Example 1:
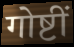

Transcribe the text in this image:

गोष्टीं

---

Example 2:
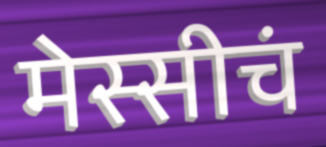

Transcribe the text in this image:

मेस्सीचं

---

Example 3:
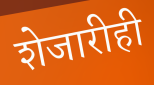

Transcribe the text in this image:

शेजारीही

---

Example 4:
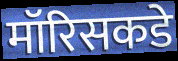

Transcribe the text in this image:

मॉरिसकडे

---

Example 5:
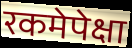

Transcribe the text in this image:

रकमेपेक्षा